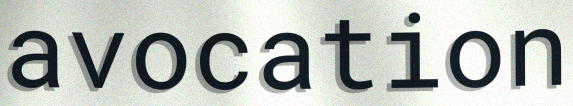
avocation